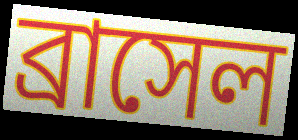
ব্রাসেল